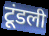
टूंडली